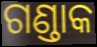
ଗଣ୍ଡାକ